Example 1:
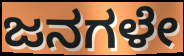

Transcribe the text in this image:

ಜನಗಳೇ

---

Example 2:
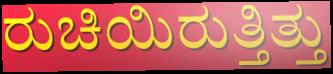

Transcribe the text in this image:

ರುಚಿಯಿರುತ್ತಿತ್ತು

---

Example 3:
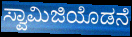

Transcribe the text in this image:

ಸ್ವಾಮಿಜಿಯೊಡನೆ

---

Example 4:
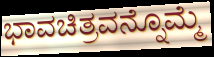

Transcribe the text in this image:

ಭಾವಚಿತ್ರವನ್ನೊಮ್ಮೆ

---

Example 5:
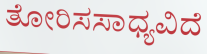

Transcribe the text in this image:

ತೋರಿಸಸಾಧ್ಯವಿದೆ